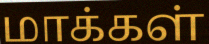
மாக்கள்